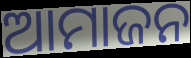
ଆମାଜନ